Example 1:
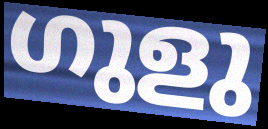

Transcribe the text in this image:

ഗുളു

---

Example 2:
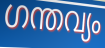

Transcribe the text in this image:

ഗന്തവ്യം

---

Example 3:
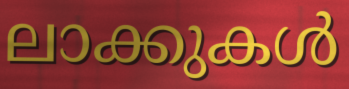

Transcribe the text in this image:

ലാക്കുകൾ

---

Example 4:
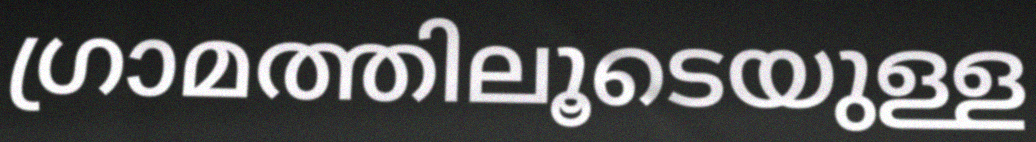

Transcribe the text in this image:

ഗ്രാമത്തിലൂടെയുള്ള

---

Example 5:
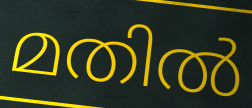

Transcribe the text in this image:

മതിൽ